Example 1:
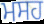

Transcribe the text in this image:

ਮਸਹ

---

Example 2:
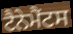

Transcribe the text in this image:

ਟੈਨੇਮੈਂਟਸ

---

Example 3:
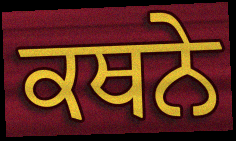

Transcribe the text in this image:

ਕਥਨੇ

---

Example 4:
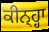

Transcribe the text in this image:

ਕੀਨ੍ਹ੍ਹਾ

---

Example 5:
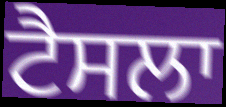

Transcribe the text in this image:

ਟੈਸਲਾ